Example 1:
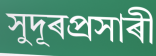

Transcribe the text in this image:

সুদূৰপ্ৰসাৰী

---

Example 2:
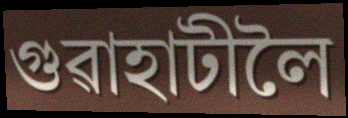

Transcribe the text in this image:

গুৱাহাটীলৈ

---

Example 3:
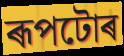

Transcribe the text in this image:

ৰূপটোৰ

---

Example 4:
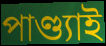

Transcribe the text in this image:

পাণ্ড্যাই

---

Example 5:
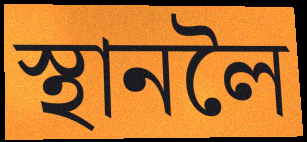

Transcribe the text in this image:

স্থানলৈ